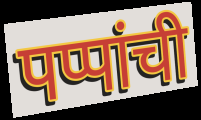
पप्पांची